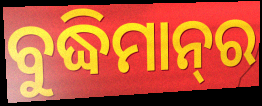
ବୁଦ୍ଧିମାନ୍‍ର